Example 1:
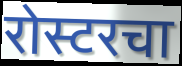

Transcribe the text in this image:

रोस्टरचा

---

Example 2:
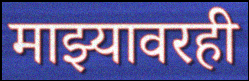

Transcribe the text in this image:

माझ्यावरही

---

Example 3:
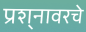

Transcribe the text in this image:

प्रश्नावरचे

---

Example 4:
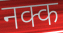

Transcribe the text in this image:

नक्क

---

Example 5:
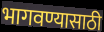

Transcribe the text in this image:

भागवण्यासाठी